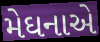
મેઘનાએ